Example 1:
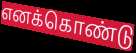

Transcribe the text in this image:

எனக்கொண்டு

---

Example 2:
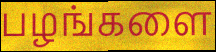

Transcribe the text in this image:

பழங்களை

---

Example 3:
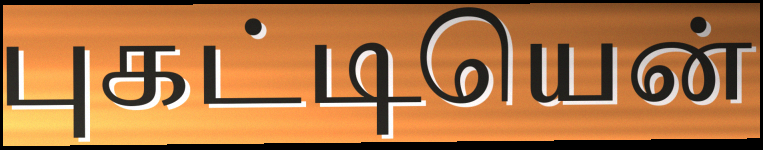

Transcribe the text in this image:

புகட்டியென்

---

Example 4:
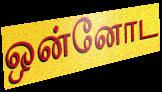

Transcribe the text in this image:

ஒன்னோட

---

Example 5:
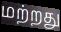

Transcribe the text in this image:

மற்றது